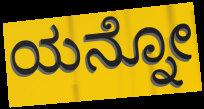
ಯನ್ನೋ